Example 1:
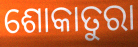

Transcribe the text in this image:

ଶୋକାତୁରା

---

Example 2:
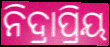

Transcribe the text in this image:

ନିଦ୍ରାପ୍ରିୟ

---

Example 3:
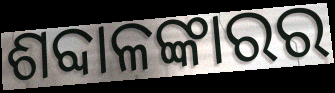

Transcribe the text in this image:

ଶବ୍ଦାଳଙ୍କାରର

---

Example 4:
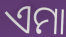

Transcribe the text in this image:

ଏମା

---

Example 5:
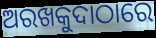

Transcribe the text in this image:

ଅରଖକୁଦାଠାରେ